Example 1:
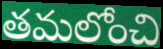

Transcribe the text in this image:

తమలోంచి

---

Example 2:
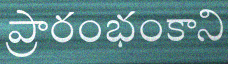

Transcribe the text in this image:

ప్రారంభంకాని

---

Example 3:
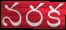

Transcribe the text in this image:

నరక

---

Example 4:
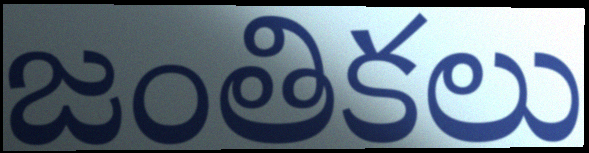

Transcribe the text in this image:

జంతికలు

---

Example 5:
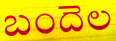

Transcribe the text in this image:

బందెల